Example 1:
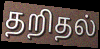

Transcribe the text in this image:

தறிதல்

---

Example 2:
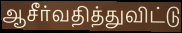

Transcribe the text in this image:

ஆசீர்வதித்துவிட்டு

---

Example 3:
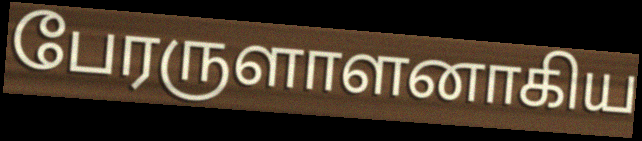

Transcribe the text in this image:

பேரருளாளனாகிய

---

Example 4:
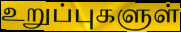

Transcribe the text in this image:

உறுப்புகளுள்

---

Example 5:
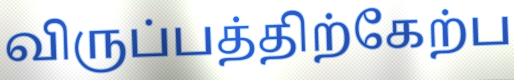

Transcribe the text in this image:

விருப்பத்திற்கேற்ப